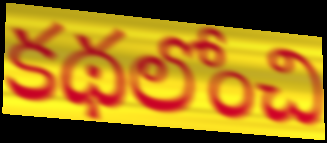
కథలోంచి